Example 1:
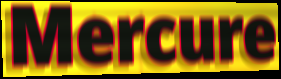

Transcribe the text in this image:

Mercure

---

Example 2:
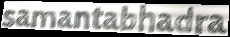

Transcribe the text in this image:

samantabhadra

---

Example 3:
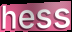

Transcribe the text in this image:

hess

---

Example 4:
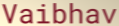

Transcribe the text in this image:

Vaibhav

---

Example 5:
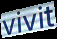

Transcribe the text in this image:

vivit